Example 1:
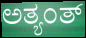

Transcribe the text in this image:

ಅತ್ಯಂತ್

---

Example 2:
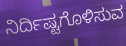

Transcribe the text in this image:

ನಿರ್ದಿಷ್ಟಗೊಳಿಸುವ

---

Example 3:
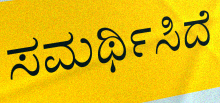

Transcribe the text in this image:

ಸಮರ್ಥಿಸಿದೆ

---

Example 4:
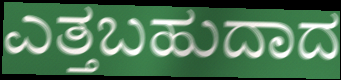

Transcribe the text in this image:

ಎತ್ತಬಹುದಾದ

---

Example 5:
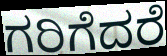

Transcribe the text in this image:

ಗರಿಗೆದರೆ